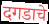
दगडाचे